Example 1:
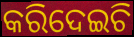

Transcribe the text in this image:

କରିଦେଇଚି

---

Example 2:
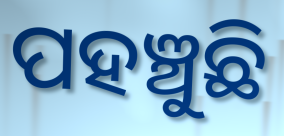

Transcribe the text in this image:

ପହଞ୍ଚୁଛି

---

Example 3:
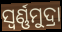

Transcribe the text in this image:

ସ୍ୱର୍ଣ୍ଣମୁଦ୍ରା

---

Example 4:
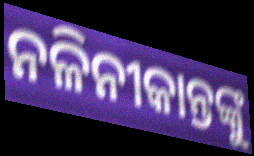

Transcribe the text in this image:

ନଳିନୀକାନ୍ତଙ୍କୁ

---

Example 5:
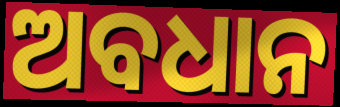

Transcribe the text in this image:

ଅବଧାନ